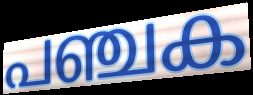
പഞ്ചക